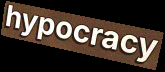
hypocracy